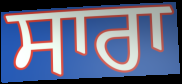
ਸਾਰਾ